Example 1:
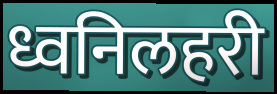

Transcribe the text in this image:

ध्वनिलहरी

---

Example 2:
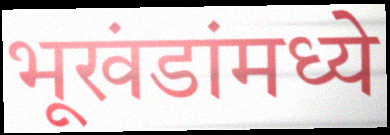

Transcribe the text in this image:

भूखंडांमध्ये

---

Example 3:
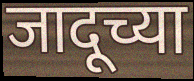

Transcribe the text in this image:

जादूच्या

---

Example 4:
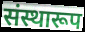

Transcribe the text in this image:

संस्थारूप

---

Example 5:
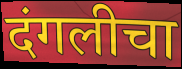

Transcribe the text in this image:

दंगलीचा